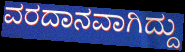
ವರದಾನವಾಗಿದ್ದು